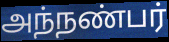
அந்நண்பர்